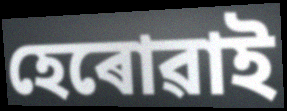
হেৰোৱাই